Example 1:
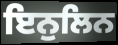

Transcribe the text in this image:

ਇਨੁਲਿਨ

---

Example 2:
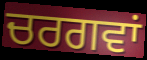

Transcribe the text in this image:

ਚਰਗਵਾਂ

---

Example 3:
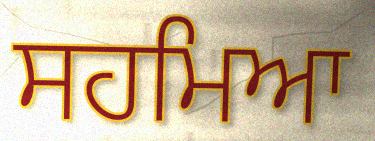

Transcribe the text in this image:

ਸਹਮਿਆ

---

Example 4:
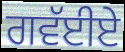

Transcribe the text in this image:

ਗਵੱਈਏ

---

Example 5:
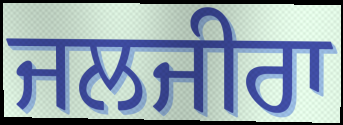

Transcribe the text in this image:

ਜਲਜੀਰਾ